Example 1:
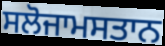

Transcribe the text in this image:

ਸਲੋਜਾਮਸਤਾਨ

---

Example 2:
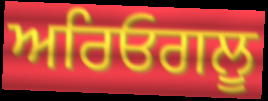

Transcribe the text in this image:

ਅਰਿਓਗਲੂ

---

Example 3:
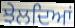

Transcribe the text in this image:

ਝੇਲਦਿਆਂ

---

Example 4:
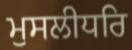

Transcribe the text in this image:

ਮੁਸਲੀਧਰਿ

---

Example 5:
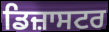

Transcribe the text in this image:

ਡਿਜ਼ਾਸਟਰ